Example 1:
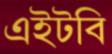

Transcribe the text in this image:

এইটবি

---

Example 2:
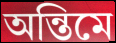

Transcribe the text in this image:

অন্তিমে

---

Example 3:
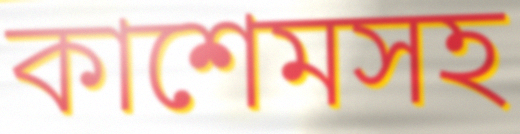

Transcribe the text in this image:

কাশেমসহ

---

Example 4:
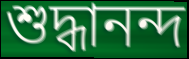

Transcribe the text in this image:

শুদ্ধানন্দ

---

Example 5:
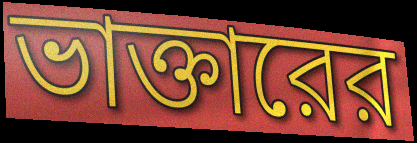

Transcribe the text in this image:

ভাক্তারের